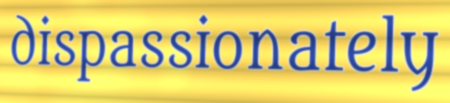
dispassionately